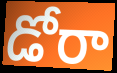
డోరా